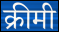
क्रीमी